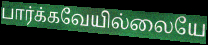
பார்க்கவேயில்லையே